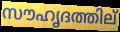
സൗഹൃദത്തില്